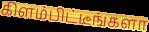
கிளம்பிட்டீங்களா